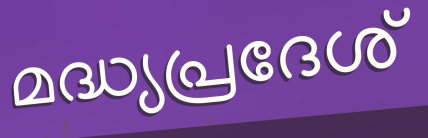
മദ്ധ്യപ്രദേശ്